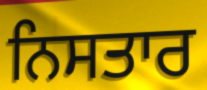
ਨਿਸਤਾਰ